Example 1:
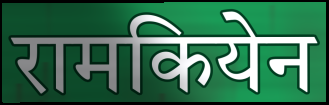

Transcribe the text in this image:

रामकियेन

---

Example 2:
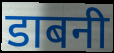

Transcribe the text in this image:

डाबनी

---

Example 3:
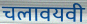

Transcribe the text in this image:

चलावयवी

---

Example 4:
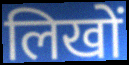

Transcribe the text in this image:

लिखों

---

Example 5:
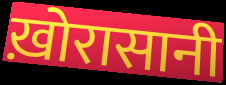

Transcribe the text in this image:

ख़ोरासानी